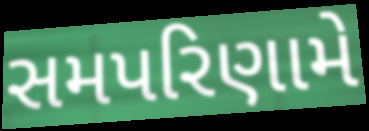
સમપરિણામે